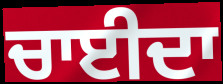
ਚਾਈਦਾ